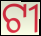
ଟୀ